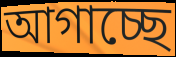
আগাচ্ছে